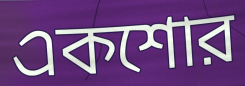
একশোর